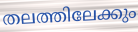
തലത്തിലേക്കും